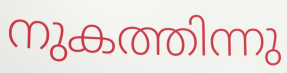
നുകത്തിന്നു